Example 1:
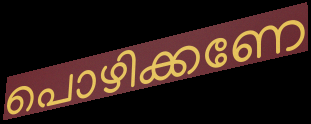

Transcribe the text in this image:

പൊഴിക്കണേ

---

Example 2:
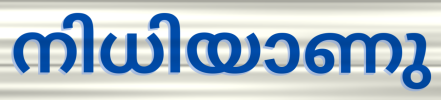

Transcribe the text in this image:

നിധിയാണു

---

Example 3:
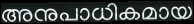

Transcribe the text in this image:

അനുപാധികമായ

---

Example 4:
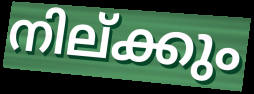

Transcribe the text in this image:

നില്ക്കും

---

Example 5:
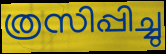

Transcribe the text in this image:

ത്രസിപ്പിച്ചു